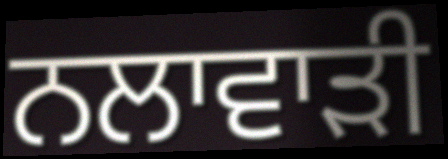
ਨਲਾਵਾੜੀ